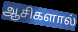
ஆசிகளால்